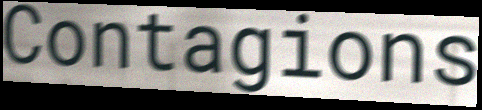
Contagions